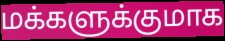
மக்களுக்குமாக